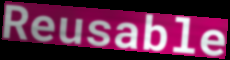
Reusable